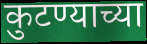
कुटण्याच्या